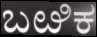
ಬೞಿಕ